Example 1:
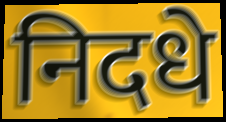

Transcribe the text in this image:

निदधे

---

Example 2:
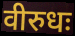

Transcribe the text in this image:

वीरुधः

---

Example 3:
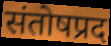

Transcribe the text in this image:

संतोषप्रद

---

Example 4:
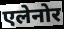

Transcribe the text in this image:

एलेनोर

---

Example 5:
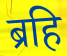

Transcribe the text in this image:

ब्रहि